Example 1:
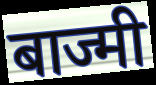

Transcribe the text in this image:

बाज्मी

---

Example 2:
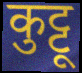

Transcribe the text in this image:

कुट्टू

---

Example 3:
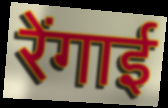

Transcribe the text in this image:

रेंगाई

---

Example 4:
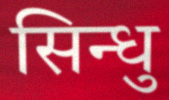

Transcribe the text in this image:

सिन्‍धु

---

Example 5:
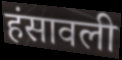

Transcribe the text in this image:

हंसावली